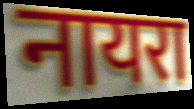
नायरा